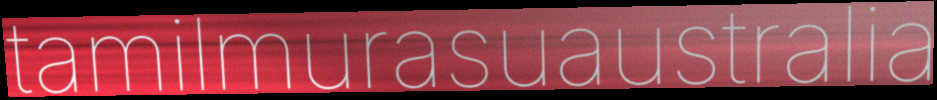
tamilmurasuaustralia